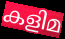
കളിമ